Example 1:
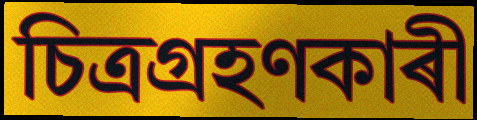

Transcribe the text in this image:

চিত্ৰগ্ৰহণকাৰী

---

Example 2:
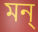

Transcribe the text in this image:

মন্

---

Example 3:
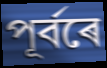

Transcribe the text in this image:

পূৰ্বৰে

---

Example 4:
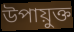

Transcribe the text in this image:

উপায়ুক্ত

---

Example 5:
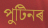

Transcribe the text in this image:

পুটিনৰ